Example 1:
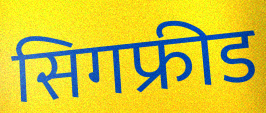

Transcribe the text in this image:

सिगफ्रीड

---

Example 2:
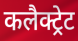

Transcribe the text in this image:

कलैक्ट्रेट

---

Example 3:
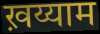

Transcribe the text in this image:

ख़य्याम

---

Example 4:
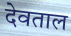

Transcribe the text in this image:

देवताल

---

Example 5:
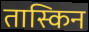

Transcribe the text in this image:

तास्किन